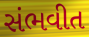
સંભવીત